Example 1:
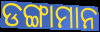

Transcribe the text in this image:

ଡଙ୍ଗାମାନ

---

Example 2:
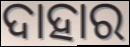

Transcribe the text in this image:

ଦାହାର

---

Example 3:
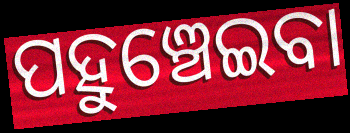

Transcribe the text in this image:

ପହୁଞ୍ଚେଇବା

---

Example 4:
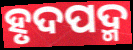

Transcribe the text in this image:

ହୃଦପଦ୍ମ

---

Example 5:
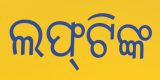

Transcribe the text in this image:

ଲଫ୍‌ଟିଙ୍କ